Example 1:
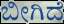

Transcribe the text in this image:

ಬೀಗಿದೆ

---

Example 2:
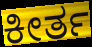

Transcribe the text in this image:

ಕೀರ್ತ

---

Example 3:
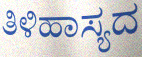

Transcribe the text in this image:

ತಿಳಿಹಾಸ್ಯದ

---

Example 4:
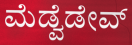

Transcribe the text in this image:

ಮೆಡ್ವೆಡೇವ್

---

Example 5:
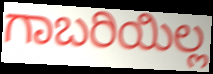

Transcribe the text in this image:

ಗಾಬರಿಯಿಲ್ಲ